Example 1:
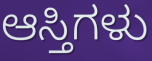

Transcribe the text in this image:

ಆಸ್ತಿಗಳು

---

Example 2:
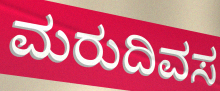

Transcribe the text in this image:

ಮರುದಿವಸ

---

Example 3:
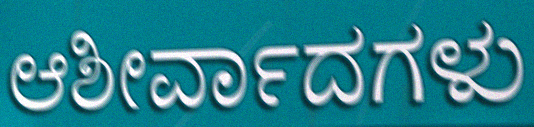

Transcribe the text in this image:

ಆಶೀರ್ವಾದಗಳು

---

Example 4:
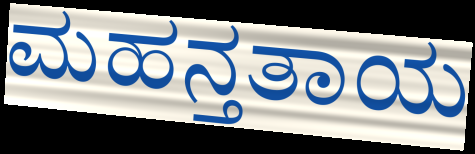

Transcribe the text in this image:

ಮಹನ್ತತಾಯ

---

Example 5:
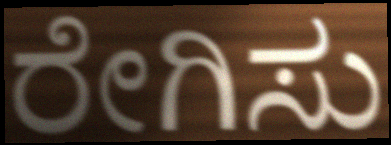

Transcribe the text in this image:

ರೇಗಿಸು